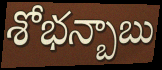
శోభన్బాబు